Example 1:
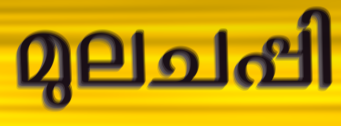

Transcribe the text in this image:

മുലചപ്പി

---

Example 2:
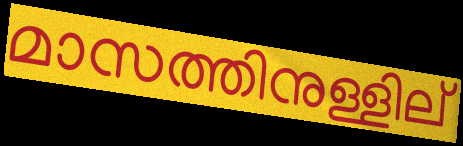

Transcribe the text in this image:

മാസത്തിനുള്ളില്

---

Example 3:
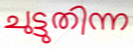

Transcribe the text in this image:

ചുട്ടുതിന്ന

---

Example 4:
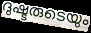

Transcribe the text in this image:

ദുഷ്ടരുടെയും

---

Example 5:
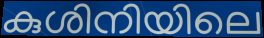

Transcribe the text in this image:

കുശിനിയിലെ